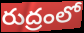
రుద్రంలో